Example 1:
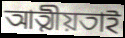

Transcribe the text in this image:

আত্মীয়তাই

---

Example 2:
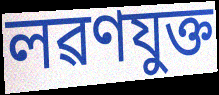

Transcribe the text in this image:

লৱণযুক্ত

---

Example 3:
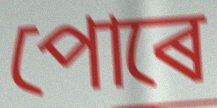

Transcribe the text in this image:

পোৰে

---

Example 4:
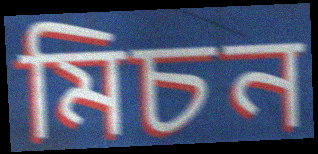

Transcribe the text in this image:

মিচন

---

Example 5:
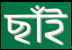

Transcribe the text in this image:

ছাঁই